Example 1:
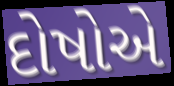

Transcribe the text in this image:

દોષોએ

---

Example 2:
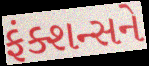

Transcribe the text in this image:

ફંક્શન્સને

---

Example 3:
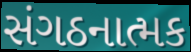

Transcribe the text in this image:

સંગઠનાત્મક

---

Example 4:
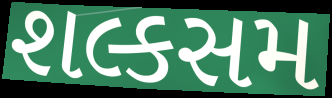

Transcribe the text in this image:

શલ્કસમ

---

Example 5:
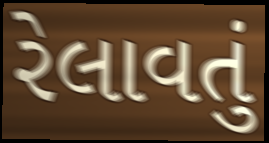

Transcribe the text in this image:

રેલાવતું